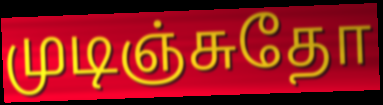
முடிஞ்சுதோ